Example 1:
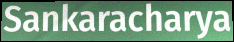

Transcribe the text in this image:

Sankaracharya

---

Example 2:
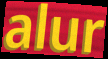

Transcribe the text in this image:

alur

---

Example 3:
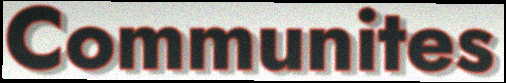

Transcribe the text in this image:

Communites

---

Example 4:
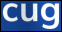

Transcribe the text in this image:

cug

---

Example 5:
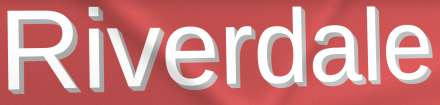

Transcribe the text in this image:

Riverdale